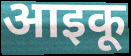
आइकू